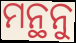
ମନ୍ଥନୁ